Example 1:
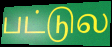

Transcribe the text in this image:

பட்டுல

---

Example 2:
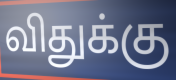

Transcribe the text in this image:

விதுக்கு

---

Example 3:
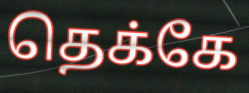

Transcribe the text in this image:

தெக்கே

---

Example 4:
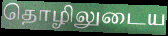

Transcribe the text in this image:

தொழிலுடைய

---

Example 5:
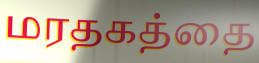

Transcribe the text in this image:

மரதகத்தை